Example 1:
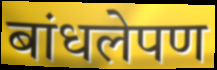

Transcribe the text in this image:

बांधलेपण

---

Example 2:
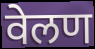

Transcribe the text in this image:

वेलण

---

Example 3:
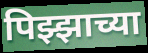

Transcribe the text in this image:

पिझ्झाच्या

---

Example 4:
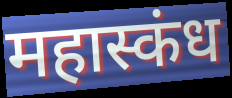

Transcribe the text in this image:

महास्कंध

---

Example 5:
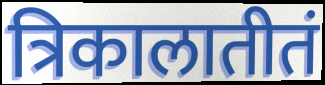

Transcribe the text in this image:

त्रिकालातीतं